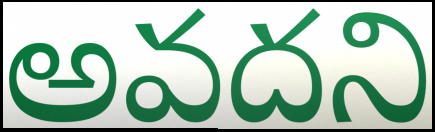
అవదని